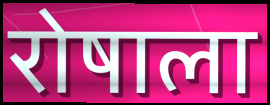
रोषाला